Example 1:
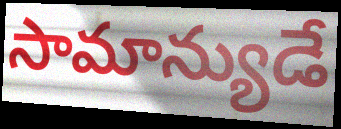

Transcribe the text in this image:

సామాన్యుడే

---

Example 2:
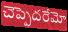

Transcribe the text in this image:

చెప్పెదరేమో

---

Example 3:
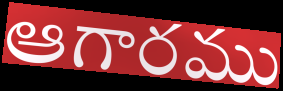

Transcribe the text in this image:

ఆగారము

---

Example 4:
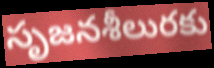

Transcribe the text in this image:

సృజనశీలురకు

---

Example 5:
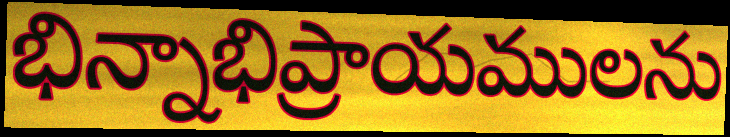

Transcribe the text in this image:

భిన్నాభిప్రాయములను